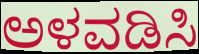
ಅಳವಡಿಸಿ